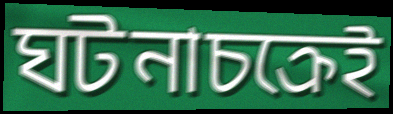
ঘটনাচক্রেই